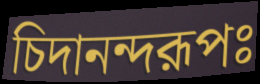
চিদানন্দরূপঃ